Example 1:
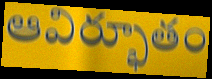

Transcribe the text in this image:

ఆవిర్భూతం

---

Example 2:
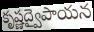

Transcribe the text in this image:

కృష్ణద్వైపాయన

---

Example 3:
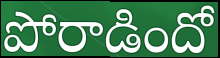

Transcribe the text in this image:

పోరాడిందో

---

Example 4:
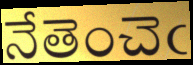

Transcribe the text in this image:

నేతెంచెఁ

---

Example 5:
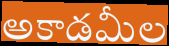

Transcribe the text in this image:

అకాడమీల